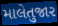
માલેતુજાર